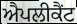
ਐਪਲੀਕੈਂਟ